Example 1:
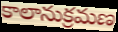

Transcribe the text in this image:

కాలానుక్రమణ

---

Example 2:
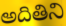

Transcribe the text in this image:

అదితిని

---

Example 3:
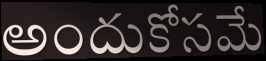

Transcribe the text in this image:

అందుకోసమే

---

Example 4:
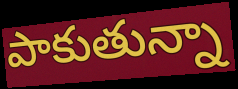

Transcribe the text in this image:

పాకుతున్నా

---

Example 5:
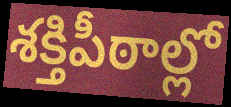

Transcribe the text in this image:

శక్తిపీఠాల్లో